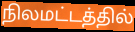
நிலமட்டத்தில்